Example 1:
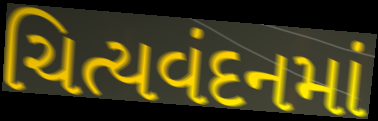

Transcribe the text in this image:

ચિત્યવંદનમાં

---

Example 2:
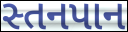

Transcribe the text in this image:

સ્તનપાન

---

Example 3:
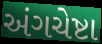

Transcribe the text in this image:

અંગચેષ્ટા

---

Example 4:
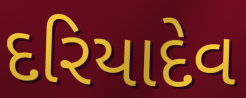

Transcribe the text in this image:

દરિયાદેવ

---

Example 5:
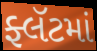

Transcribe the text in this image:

ફ્લૅટમાં